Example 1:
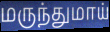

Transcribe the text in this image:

மருந்துமாய்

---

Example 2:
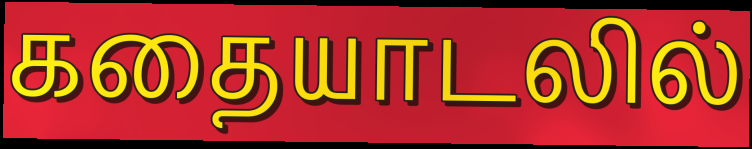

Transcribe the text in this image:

கதையாடலில்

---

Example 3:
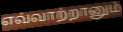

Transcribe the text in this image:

எவ்வாற்றானும்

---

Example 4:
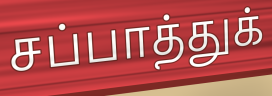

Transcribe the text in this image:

சப்பாத்துக்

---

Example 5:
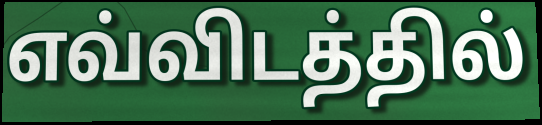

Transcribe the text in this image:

எவ்விடத்தில்